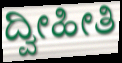
ದ್ವೀಹೀತಿ